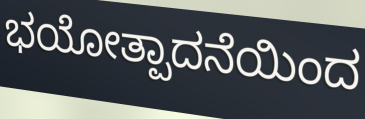
ಭಯೋತ್ಪಾದನೆಯಿಂದ